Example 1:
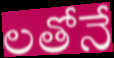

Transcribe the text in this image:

లతోనే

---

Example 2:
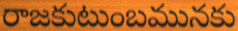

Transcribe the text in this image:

రాజకుటుంబమునకు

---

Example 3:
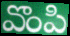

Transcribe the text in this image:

వొంపి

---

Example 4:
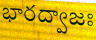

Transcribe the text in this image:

భారద్వాజః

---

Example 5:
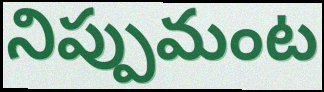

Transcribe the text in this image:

నిప్పుమంట